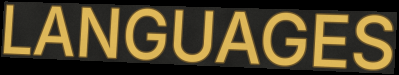
LANGUAGES